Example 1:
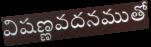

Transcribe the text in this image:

విషణ్ణవదనముతో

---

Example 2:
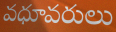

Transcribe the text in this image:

వధూవరులు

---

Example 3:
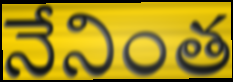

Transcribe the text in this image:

నేనింత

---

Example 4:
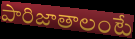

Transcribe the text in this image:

పారిజాతాలంటే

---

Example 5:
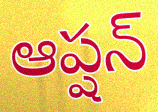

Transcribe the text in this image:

ఆప్షన్